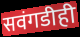
सवंगडीही